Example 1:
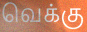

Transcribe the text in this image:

வெக்கு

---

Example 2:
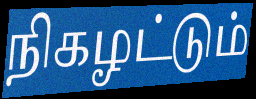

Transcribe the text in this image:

நிகழட்டும்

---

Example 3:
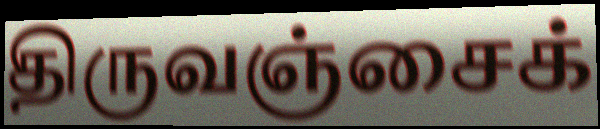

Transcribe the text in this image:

திருவஞ்சைக்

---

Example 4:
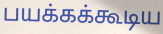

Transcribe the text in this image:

பயக்கக்கூடிய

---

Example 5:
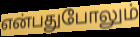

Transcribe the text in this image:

என்பதுபோலும்